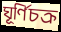
ঘূর্ণিচক্র